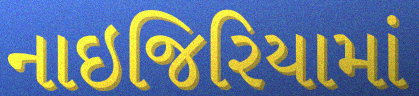
નાઇજિરિયામાં